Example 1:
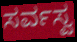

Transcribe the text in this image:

ಸರ್ವಸ್ವ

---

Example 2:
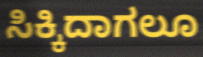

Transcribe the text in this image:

ಸಿಕ್ಕಿದಾಗಲೂ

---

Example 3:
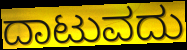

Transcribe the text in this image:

ದಾಟುವದು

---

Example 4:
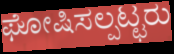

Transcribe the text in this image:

ಘೋಷಿಸಲ್ಪಟ್ಟರು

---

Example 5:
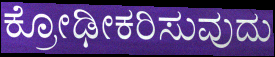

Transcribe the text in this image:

ಕ್ರೋಢೀಕರಿಸುವುದು